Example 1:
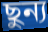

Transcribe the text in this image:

ছুন্য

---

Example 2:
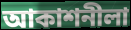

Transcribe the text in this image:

আকাশনীলা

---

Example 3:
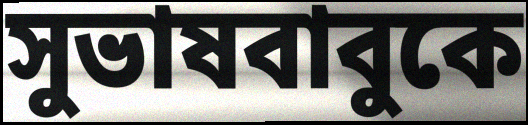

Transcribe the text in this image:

সুভাষবাবুকে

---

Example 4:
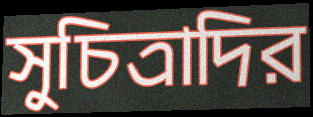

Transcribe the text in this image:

সুচিত্রাদির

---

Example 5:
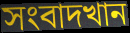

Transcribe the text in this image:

সংবাদখান